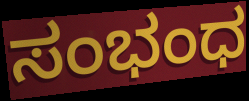
ಸಂಭಂಧ